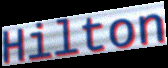
Hilton